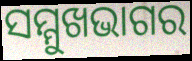
ସମ୍ମୁଖଭାଗର